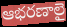
ఆభరణాలై